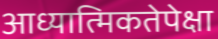
आध्यात्मिकतेपेक्षा